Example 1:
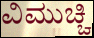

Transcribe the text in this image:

ವಿಮುಚ್ಚಿ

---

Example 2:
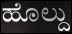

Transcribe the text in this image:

ಹೊಲ್ದು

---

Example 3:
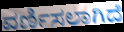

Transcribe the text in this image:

ವರ್ಣಿಸಲಾಗಿದೆ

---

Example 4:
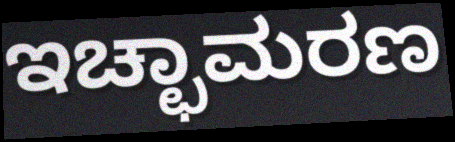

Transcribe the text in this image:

ಇಚ್ಛಾಮರಣ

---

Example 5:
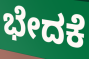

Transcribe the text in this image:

ಭೇದಕೆ